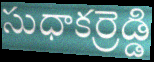
సుధాకర్రెడ్డి